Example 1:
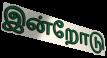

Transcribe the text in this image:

இன்றோடு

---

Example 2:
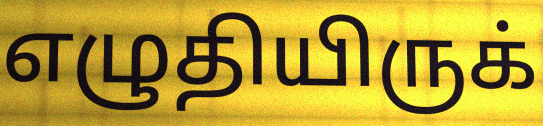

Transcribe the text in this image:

எழுதியிருக்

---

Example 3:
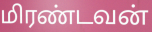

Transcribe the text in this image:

மிரண்டவன்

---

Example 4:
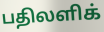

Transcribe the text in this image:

பதிலளிக்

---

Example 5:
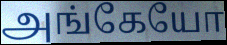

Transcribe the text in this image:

அங்கேயோ